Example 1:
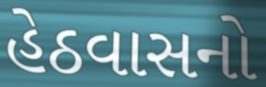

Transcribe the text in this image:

હેઠવાસનો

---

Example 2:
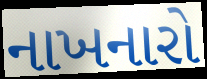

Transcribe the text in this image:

નાખનારો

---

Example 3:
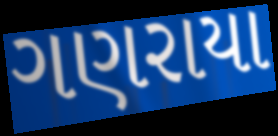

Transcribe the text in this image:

ગણરાયા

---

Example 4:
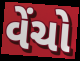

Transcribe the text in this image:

વેંચો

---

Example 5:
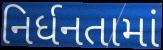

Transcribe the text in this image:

નિર્ધનતામાં